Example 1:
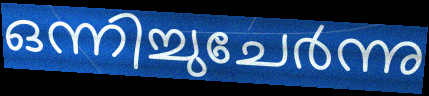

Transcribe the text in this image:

ഒന്നിച്ചുചേർന്നു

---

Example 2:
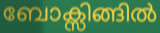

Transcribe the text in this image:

ബോക്സിങ്ങിൽ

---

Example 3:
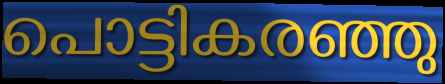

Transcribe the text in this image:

പൊട്ടികരഞ്ഞു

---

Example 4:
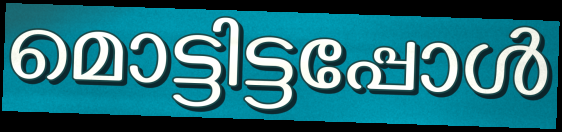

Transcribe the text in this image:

മൊട്ടിട്ടപ്പോൾ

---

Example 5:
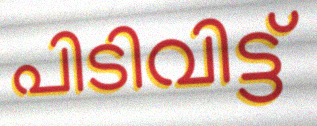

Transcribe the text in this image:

പിടിവിട്ട്